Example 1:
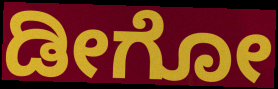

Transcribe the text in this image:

ಡೀಗೋ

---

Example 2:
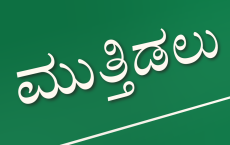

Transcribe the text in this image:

ಮುತ್ತಿಡಲು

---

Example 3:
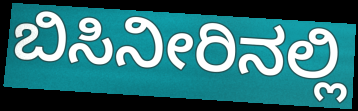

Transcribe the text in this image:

ಬಿಸಿನೀರಿನಲ್ಲಿ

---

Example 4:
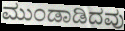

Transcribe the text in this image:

ಮುಂಡಾಡಿದವು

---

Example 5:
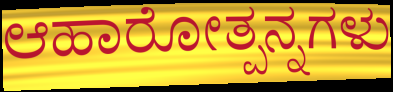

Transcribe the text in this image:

ಆಹಾರೋತ್ಪನ್ನಗಳು